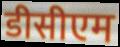
डीसीएम